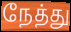
நேத்து